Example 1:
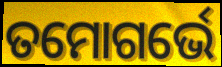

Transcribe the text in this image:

ତମୋଗର୍ଭେ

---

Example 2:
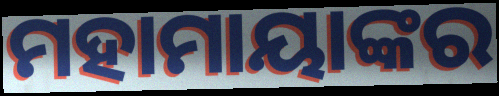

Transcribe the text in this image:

ମହାମାୟାଙ୍କର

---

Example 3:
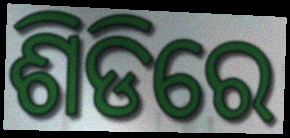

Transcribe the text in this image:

ଶିଡିରେ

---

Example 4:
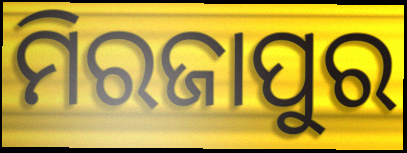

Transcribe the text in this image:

ମିରଜାପୁର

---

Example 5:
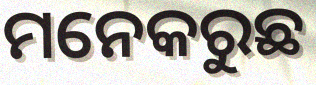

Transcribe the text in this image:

ମନେକରୁଛ